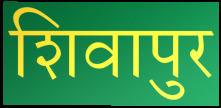
शिवापुर